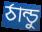
ঠান্ডু